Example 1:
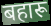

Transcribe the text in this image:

बहारू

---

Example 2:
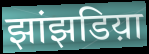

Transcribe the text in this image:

झांझडिय़ा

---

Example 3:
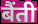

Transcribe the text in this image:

बैंती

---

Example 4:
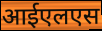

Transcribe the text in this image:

आईएलएस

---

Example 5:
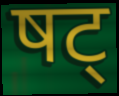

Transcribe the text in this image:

षट्